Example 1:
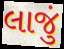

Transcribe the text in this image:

લાજું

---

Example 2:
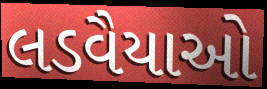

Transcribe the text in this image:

લડવૈયાઓ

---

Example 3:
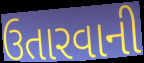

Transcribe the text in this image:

ઉતારવાની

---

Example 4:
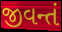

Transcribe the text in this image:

જીવન્તં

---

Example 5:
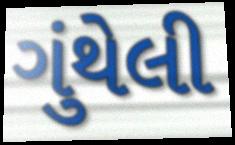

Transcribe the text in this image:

ગુંથેલી